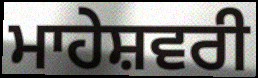
ਮਾਹੇਸ਼ਵਰੀ